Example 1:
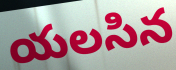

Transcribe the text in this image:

యలసిన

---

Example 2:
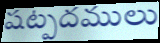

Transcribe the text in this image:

షట్పదములు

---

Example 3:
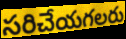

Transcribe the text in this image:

సరిచేయగలరు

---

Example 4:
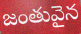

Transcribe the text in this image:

జంతువైన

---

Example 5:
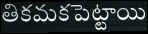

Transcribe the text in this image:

తికమకపెట్టాయి